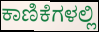
ಕಾಣಿಕೆಗಳಲ್ಲಿ